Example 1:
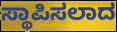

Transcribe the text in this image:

ಸ್ಥಾಪಿಸಲಾದ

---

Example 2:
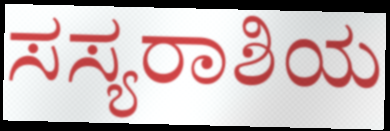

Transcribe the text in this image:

ಸಸ್ಯರಾಶಿಯ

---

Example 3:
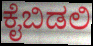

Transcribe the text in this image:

ಕೈಬಿಡಲಿ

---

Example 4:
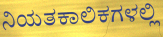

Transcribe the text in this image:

ನಿಯತಕಾಲಿಕಗಳಲ್ಲಿ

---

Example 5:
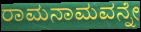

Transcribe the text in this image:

ರಾಮನಾಮವನ್ನೇ